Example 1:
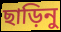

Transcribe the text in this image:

ছাড়িনু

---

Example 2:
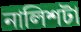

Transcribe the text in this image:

নালিশটা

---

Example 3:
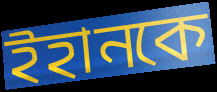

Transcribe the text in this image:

ইহানকে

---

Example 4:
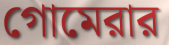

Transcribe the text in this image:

গোমেরার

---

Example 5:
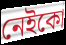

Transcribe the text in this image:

নেইকো